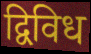
द्विविध